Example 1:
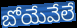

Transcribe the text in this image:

బోయేవేలే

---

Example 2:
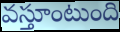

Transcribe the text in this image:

వస్తూంటుంది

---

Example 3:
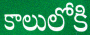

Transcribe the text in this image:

కాలులోకి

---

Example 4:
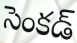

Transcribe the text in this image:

సెంకడ్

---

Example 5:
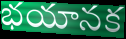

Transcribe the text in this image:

భయానక